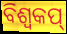
ବିଶ୍ବକପ୍